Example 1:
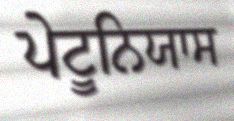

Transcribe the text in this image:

ਪੇਟੂਨਿਯਾਸ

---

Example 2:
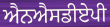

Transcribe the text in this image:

ਐਨਐਸਡੀਏਪੀ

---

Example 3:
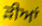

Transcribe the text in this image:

ੜੀਆਂ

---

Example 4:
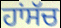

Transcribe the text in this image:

ਹਾਂਸੱਚ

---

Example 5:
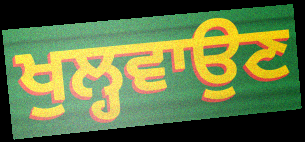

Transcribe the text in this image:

ਖੁਲ੍ਹਵਾਉਣ